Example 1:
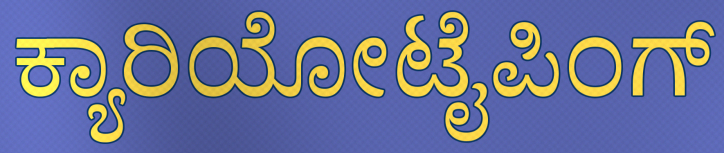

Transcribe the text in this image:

ಕ್ಯಾರಿಯೋಟೈಪಿಂಗ್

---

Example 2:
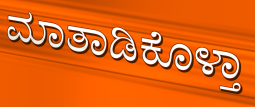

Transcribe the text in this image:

ಮಾತಾಡಿಕೊಳ್ತಾ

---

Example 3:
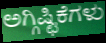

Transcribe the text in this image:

ಅಗ್ಗಿಷ್ಟಿಕೆಗಳು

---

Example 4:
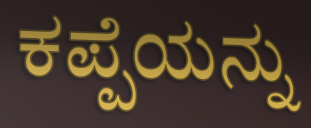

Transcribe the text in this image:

ಕಪ್ಪೆಯನ್ನು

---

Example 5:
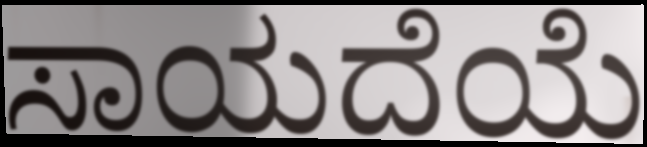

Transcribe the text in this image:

ಸಾಯದೆಯೆ